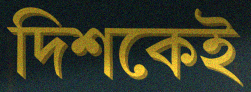
দিশকেই